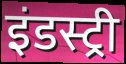
इंडस्ट्री